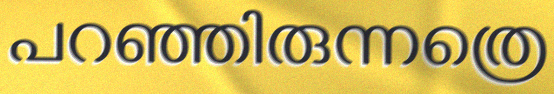
പറഞ്ഞിരുന്നത്രെ